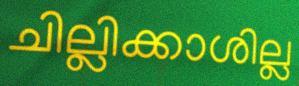
ചില്ലിക്കാശില്ല